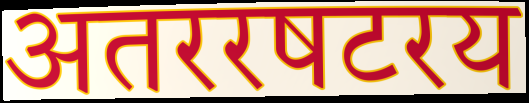
अतररषटरय